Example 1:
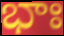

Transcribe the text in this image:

భాః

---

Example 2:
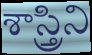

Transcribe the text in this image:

శాస్త్రిని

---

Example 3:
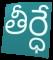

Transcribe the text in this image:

తీర్ధే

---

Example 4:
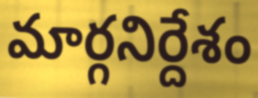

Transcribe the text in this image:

మార్గనిర్దేశం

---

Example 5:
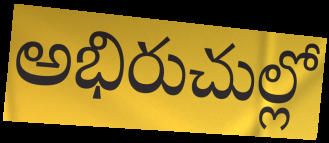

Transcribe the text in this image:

అభిరుచుల్లో